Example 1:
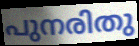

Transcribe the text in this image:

പുനരിതു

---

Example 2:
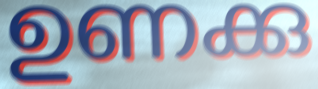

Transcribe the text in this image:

ഉണക്കു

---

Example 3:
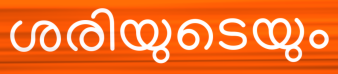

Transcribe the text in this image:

ശരിയുടെയും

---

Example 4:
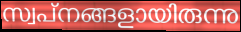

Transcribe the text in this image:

സ്വപ്‌നങ്ങളായിരുന്നു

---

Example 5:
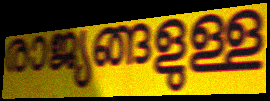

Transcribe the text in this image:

രാജ്യങ്ങളുള്ള